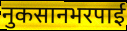
नुकसानभरपाई